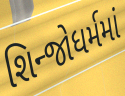
શિન્જોધર્મમાં